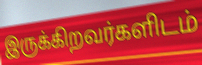
இருக்கிறவர்களிடம்